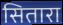
सितारा